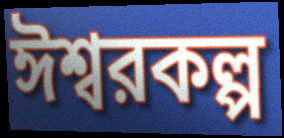
ঈশ্বরকল্প